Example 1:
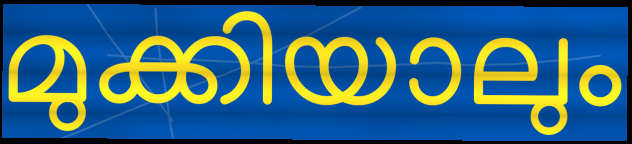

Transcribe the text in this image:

മുക്കിയാലും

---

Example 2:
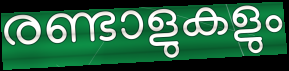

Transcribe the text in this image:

രണ്ടാളുകളും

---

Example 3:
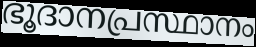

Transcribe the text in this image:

ഭൂദാനപ്രസ്ഥാനം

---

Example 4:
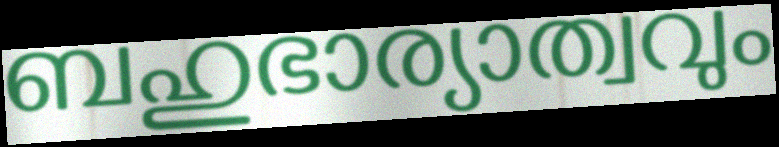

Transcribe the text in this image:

ബഹുഭാര്യാത്വവും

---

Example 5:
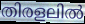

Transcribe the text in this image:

തിരളലിൽ